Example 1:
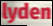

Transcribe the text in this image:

lyden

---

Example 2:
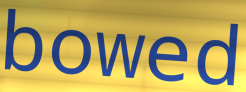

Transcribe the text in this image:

bowed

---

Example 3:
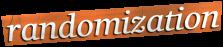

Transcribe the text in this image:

randomization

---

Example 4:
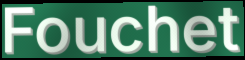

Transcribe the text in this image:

Fouchet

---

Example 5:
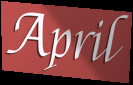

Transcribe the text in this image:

April